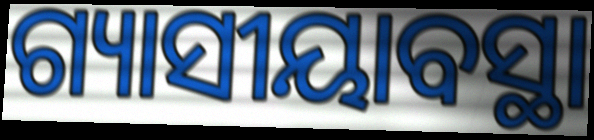
ଗ୍ୟାସୀୟାବସ୍ଥା